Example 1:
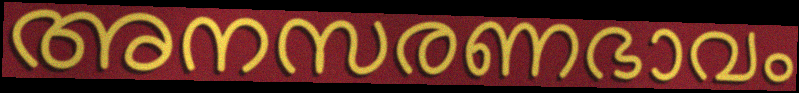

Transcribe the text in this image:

അനസരണഭാവം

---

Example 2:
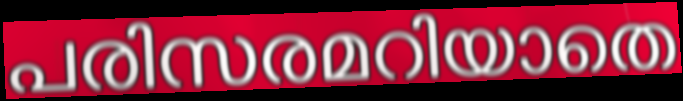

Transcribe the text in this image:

പരിസരമറിയാതെ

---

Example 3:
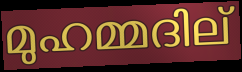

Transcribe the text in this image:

മുഹമ്മദില്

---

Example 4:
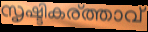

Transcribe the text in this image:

സൃഷ്ടികര്ത്താവ്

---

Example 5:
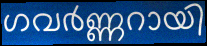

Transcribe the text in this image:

ഗവർണ്ണറായി